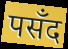
पसँद